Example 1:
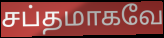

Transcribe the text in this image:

சப்தமாகவே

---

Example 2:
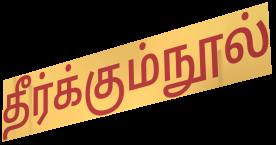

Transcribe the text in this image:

தீர்க்கும்நூல்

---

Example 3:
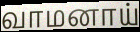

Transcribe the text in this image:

வாமனாய்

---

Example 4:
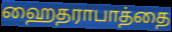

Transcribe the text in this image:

ஹைதராபாத்தை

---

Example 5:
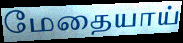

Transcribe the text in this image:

மேதையாய்